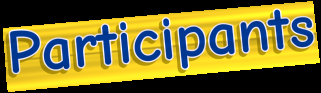
Participants